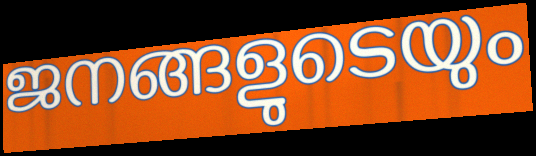
ജനങ്ങളുടെയും